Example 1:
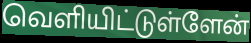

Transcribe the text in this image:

வெளியிட்டுள்ளேன்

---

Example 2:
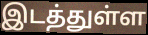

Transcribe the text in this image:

இடத்துள்ள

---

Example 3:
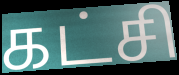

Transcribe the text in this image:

கட்சி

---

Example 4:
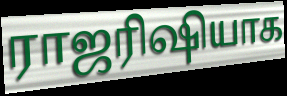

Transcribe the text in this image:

ராஜரிஷியாக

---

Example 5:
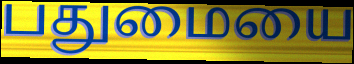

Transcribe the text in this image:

பதுமையை